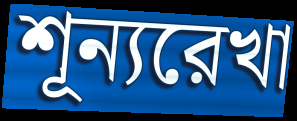
শূন্যরেখা